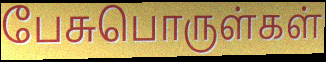
பேசுபொருள்கள்